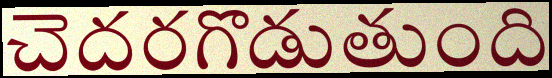
చెదరగొడుతుంది